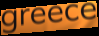
greece